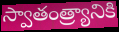
స్వాతంత్ర్యానికి